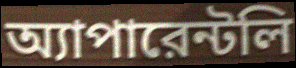
অ্যাপারেন্টলি